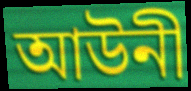
আউনী